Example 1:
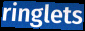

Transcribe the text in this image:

ringlets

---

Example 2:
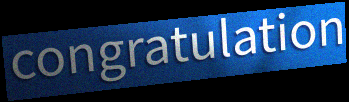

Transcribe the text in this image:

congratulation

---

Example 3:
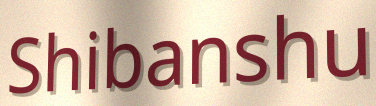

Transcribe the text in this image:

Shibanshu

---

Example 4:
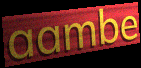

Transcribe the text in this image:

aambe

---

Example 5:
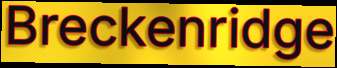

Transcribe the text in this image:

Breckenridge